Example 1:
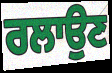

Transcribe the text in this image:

ਰਲਾਉਣ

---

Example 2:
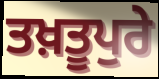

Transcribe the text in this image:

ਤਖ਼ਤੂਪੁਰੇ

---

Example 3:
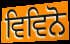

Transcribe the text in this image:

ਵਿਵਿਨੋ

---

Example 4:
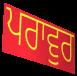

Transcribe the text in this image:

ਪਰਾਵੁਰ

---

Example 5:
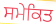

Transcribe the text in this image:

ਸਮੇਕਿਤ